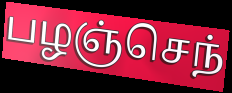
பழஞ்செந்